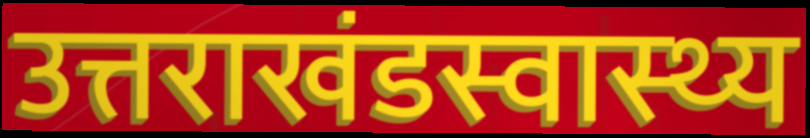
उत्तराखंडस्वास्थ्य